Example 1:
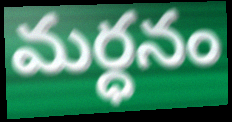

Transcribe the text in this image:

మర్ధనం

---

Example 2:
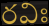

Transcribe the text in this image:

రవిః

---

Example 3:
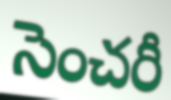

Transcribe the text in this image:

సెంచరీ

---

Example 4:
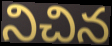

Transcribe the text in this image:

నిచిన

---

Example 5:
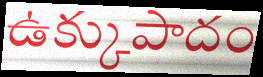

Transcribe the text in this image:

ఉక్కుపాదం